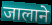
जालाने